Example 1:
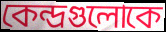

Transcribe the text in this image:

কেন্দ্রগুলোকে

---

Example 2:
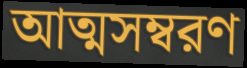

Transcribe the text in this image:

আত্মসম্বরণ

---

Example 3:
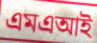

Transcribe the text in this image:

এমএআই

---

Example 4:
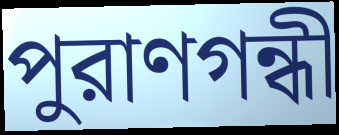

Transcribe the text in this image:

পুরাণগন্ধী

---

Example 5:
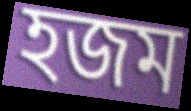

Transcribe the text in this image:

হজম